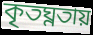
কৃতঘ্নতায়